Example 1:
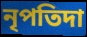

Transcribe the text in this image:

নৃপতিদা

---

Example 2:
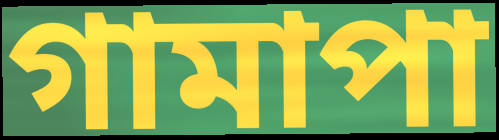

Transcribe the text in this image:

গামাপা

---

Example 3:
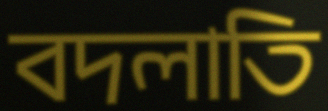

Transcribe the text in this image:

বদলাতি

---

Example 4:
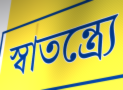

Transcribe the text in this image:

স্বাতন্ত্র্যে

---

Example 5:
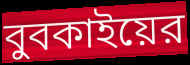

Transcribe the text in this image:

বুবকাইয়ের